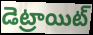
డెట్రాయిట్